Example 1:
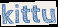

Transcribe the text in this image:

kittu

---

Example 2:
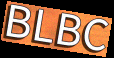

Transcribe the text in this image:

BLBC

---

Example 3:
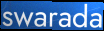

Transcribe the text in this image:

swarada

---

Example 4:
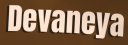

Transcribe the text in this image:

Devaneya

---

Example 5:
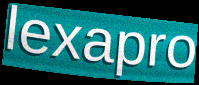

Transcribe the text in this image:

lexapro